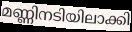
മണ്ണിനടിയിലാക്കി